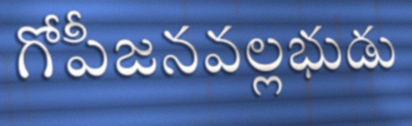
గోపీజనవల్లభుడు